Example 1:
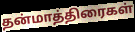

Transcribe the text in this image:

தன்மாத்திரைகள்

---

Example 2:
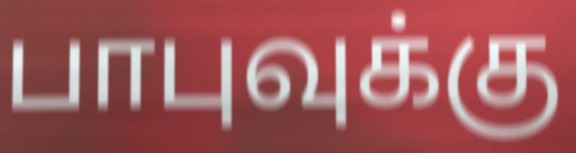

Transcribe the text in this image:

பாபுவுக்கு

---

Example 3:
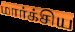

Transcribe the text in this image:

மார்க்சிய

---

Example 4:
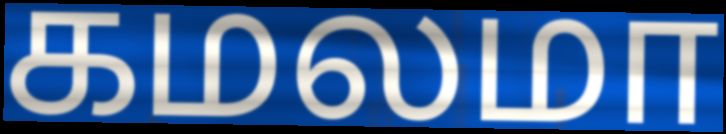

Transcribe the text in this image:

கமலமா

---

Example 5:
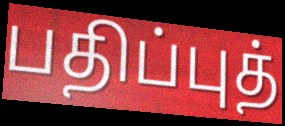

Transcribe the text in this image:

பதிப்புத்